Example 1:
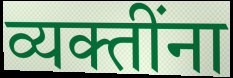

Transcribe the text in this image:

व्यक्‍तींना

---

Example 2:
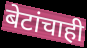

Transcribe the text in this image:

बेटांचाही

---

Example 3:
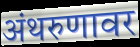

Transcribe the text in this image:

अंथरुणावर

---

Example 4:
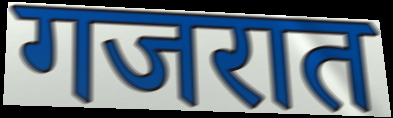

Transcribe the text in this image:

गजरात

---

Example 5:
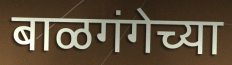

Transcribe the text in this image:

बाळगंगेच्या